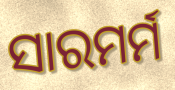
ସାରମର୍ମ